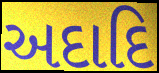
અદાદિ